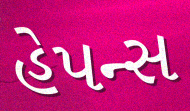
હેપન્સ